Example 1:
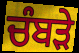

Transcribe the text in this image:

ਚੰਬੜੇ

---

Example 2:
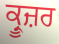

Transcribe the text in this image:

ਕ੍ਰੂਜ਼ਰ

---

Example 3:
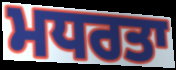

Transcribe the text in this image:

ਮਧਰਤਾ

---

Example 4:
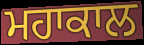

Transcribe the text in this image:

ਮਹਾਕਾਲ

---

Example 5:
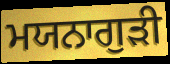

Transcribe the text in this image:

ਮਯਨਾਗੁੜੀ